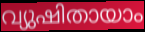
വ്യുഷിതായാം